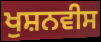
ਖੁਸ਼ਨਵੀਸ